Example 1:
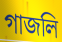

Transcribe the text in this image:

গাজলি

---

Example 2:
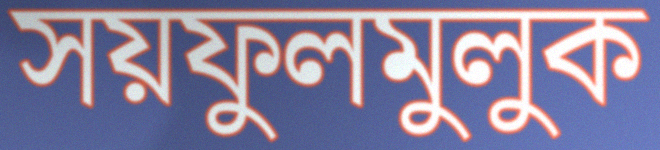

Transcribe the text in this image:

সয়ফুলমুলুক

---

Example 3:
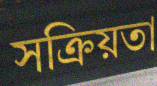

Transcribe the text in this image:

সক্রিয়তা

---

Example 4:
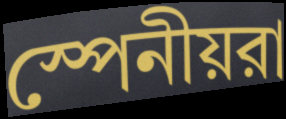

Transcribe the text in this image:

স্পেনীয়রা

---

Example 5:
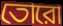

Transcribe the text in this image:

তোরো